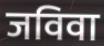
जविवा